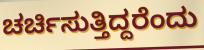
ಚರ್ಚಿಸುತ್ತಿದ್ದರೆಂದು